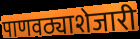
पाणवठ्याशेजारी